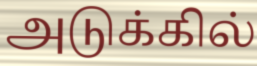
அடுக்கில்